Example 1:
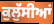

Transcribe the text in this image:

ਕੁਲੁੱਸੀਆਂ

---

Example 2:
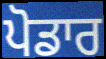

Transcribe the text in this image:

ਪੋਡਾਰ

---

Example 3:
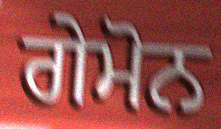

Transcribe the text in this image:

ਗੇਮੋਨ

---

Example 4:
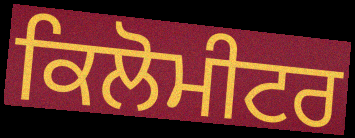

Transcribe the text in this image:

ਕਿਲੋਮੀਟਰ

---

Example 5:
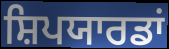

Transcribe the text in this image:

ਸ਼ਿਪਯਾਰਡਾਂ